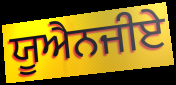
ਯੂਐਨਜੀਏ